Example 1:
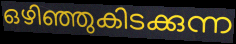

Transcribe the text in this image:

ഒഴിഞ്ഞുകിടക്കുന്ന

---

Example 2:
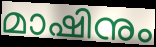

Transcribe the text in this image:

മാഷിനും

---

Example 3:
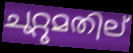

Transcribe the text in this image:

ചുറ്റുമതില്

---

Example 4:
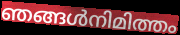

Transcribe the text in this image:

ഞങ്ങൾനിമിത്തം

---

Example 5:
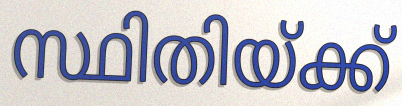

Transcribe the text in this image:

സ്ഥിതിയ്ക്ക്